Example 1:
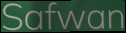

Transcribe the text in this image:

Safwan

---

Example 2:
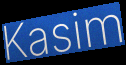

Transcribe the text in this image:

Kasim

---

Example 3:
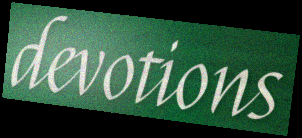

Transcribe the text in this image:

devotions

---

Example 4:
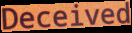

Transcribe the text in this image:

Deceived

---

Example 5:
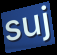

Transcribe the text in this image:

suj